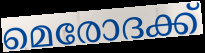
മെരോദക്ക്